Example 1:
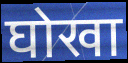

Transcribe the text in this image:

घोखा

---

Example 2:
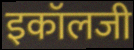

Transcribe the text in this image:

इकॉलजी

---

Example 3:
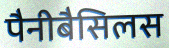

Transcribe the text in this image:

पैनीबैसिलस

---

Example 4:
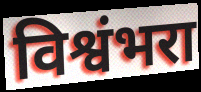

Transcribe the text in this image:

विश्वंभरा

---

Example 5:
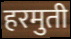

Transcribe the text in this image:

हरमुती